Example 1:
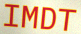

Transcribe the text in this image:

IMDT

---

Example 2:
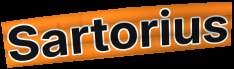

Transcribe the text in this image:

Sartorius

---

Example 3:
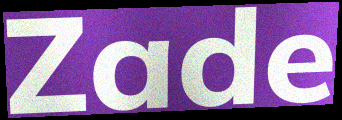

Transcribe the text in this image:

Zade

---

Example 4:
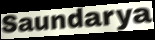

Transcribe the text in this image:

Saundarya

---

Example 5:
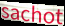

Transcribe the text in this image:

sachot